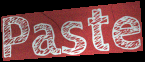
Paste